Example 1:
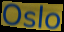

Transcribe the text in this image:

Oslo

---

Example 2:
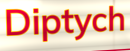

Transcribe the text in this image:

Diptych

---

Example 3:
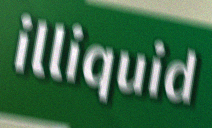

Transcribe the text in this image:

illiquid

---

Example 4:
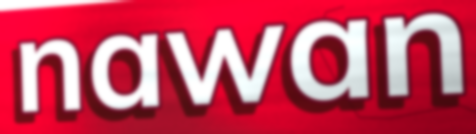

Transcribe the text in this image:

nawan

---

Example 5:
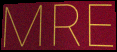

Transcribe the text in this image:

MRE